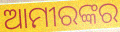
ଆମୀରଙ୍କର